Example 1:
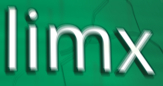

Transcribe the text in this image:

limx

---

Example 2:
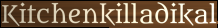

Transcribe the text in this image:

Kitchenkilladikal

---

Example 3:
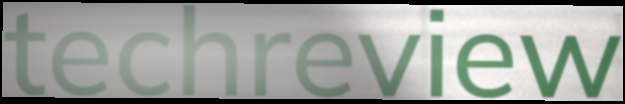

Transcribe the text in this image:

techreview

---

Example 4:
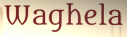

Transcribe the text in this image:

Waghela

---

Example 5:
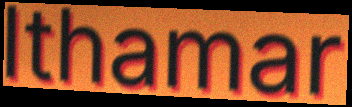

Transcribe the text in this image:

Ithamar